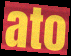
ato